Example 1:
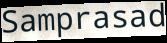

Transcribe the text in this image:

Samprasad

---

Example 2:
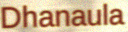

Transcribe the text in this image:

Dhanaula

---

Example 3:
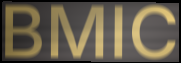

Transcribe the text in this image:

BMIC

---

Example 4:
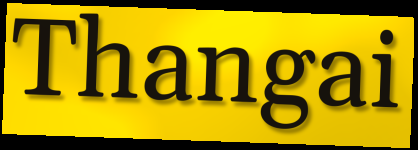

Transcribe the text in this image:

Thangai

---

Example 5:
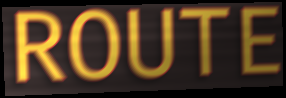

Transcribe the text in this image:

ROUTE